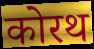
कोरथ